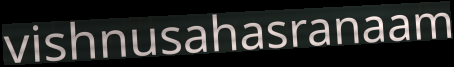
vishnusahasranaam